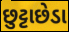
છુટ્ટાછેડા